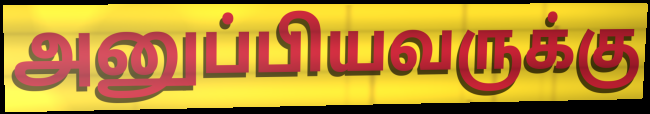
அனுப்பியவருக்கு